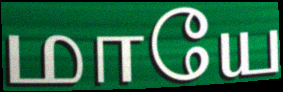
மாயே